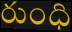
రుంధి